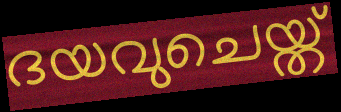
ദയവുചെയ്ത്